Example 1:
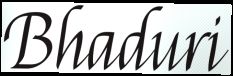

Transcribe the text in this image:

Bhaduri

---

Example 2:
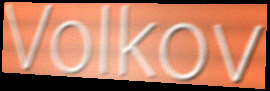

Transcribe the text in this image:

Volkov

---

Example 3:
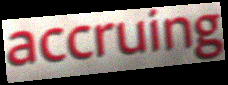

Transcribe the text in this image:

accruing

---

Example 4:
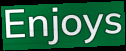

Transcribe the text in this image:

Enjoys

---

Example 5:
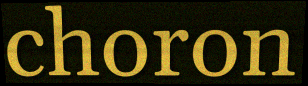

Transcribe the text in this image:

choron